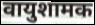
वायुशामक